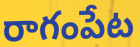
రాగంపేట